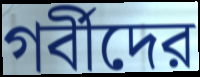
গর্বীদের